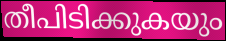
തീപിടിക്കുകയും